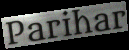
Parihar